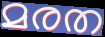
മരത